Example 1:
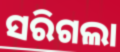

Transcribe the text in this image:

ସରିଗଲା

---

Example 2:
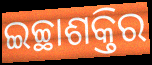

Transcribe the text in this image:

ଇଚ୍ଛାଶକ୍ତିର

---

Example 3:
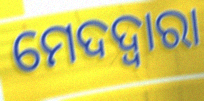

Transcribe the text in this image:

ମେଦଦ୍ଵାରା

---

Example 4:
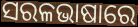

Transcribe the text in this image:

ସରଳଭାଷାରେ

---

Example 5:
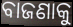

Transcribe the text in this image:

ବାଜଣାକୁ